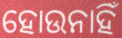
ହୋଉନାହିଁ